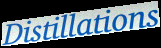
Distillations